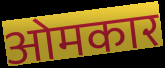
ओमकार